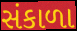
સંકાળા